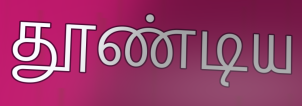
தூண்டிய